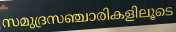
സമുദ്രസഞ്ചാരികളിലൂടെ